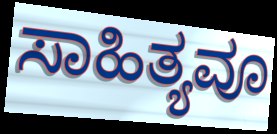
ಸಾಹಿತ್ಯವೂ